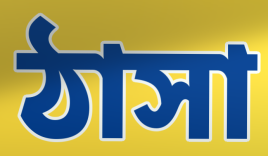
ঠাসা